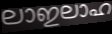
ലാഇലാഹ